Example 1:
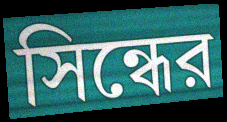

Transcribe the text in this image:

সিন্ধের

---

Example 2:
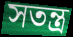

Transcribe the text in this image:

সতন্ত্র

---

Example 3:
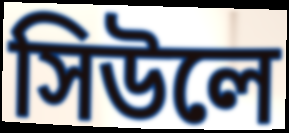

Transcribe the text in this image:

সিউলে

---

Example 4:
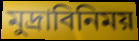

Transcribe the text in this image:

মুদ্রাবিনিময়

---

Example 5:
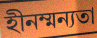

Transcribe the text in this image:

হীনম্মন্যতা